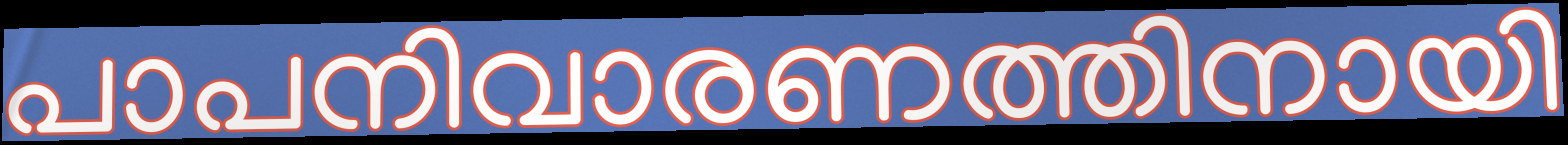
പാപനിവാരണത്തിനായി